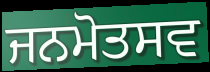
ਜਨਮੋਤਸਵ